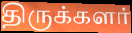
திருக்களர்